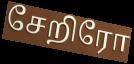
சேறிரோ